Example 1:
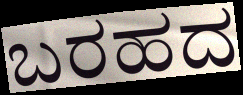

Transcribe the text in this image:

ಬರಹದ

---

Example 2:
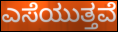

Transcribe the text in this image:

ಎಸೆಯುತ್ತವೆ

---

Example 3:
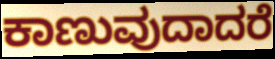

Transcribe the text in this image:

ಕಾಣುವುದಾದರೆ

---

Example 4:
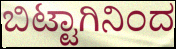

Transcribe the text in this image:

ಬಿಟ್ಟಾಗಿನಿಂದ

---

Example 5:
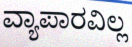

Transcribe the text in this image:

ವ್ಯಾಪಾರವಿಲ್ಲ